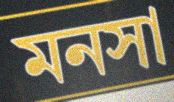
মনসা